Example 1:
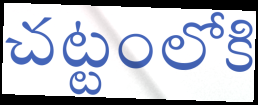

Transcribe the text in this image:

చట్టంలోకి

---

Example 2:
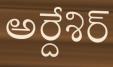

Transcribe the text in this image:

అర్దేశిర్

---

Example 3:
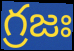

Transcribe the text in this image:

గ్రజః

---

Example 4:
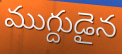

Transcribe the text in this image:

ముగ్దుడైన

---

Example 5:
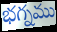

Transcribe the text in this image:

భగ్నము